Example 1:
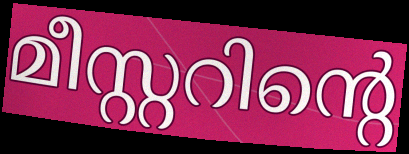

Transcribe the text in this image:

മീസ്റ്ററിന്റെ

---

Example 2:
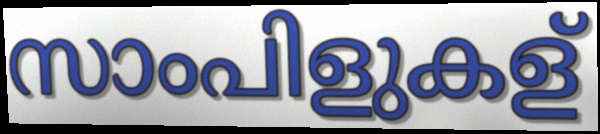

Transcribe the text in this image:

സാംപിളുകള്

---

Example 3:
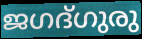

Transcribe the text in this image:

ജഗദ്ഗുരു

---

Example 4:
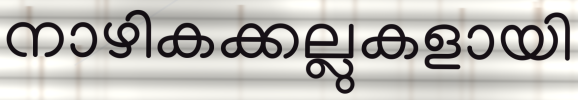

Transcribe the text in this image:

നാഴികക്കല്ലുകളായി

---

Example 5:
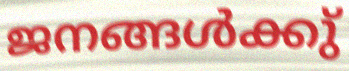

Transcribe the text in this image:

ജനങ്ങൾക്കു്